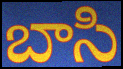
బాసి